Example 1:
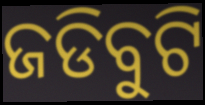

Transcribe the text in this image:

ଜଡିବୁଟି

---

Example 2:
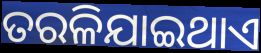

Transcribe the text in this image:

ତରଳିଯାଇଥାଏ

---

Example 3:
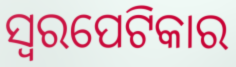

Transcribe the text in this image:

ସ୍ଵରପେଟିକାର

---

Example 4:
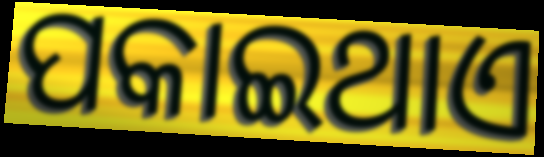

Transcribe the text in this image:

ପକାଇଥାଏ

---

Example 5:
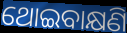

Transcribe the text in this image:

ଥୋଇବାକ୍ଷଣି